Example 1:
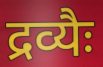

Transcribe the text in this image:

द्रव्यैः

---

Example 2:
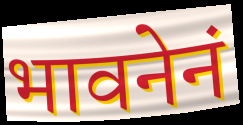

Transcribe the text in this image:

भावनेनं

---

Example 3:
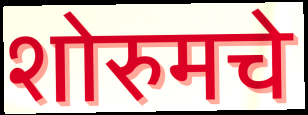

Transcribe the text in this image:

शोरुमचे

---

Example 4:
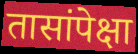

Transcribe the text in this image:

तासांपेक्षा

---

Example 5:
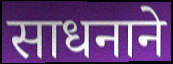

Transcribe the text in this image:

साधनाने